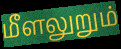
மீளலுறும்